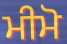
ਮੀਮੋ